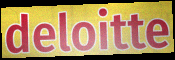
deloitte